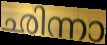
ഛിന്നാ